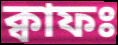
ক্বাফঃ